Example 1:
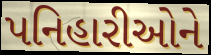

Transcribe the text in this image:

પનિહારીઓને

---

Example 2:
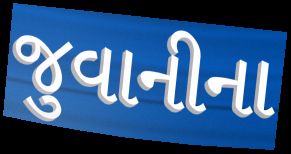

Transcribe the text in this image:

જુવાનીના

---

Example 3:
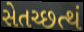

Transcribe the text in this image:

સેતચ્છત્થં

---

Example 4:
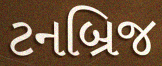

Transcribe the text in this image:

ટનબ્રિજ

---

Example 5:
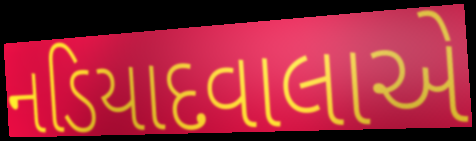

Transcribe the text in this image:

નડિયાદવાલાએ